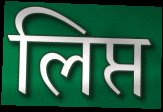
लिप्त